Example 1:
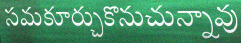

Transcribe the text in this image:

సమకూర్చుకొనుచున్నావు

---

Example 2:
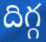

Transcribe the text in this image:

దిగ్గ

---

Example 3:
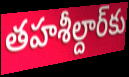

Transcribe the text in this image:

తహశీల్దార్‌కు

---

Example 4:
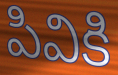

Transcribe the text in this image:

పివికి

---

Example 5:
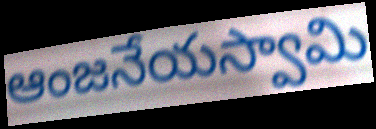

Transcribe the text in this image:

ఆంజనేయస్వామి